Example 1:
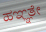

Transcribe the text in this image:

ಹಞ್ಞತೇ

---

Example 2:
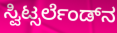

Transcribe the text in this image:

ಸ್ವಿಟ್ಸರ್ಲೆಂಡ್‌ನ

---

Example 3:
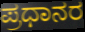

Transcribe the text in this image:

ಪ್ರಧಾನರ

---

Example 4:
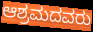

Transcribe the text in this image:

ಆಶ್ರಮದವರು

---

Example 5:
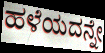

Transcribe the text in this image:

ಹಳೆಯದನ್ನೇ